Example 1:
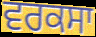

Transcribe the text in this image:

ਵਰਕਸਾ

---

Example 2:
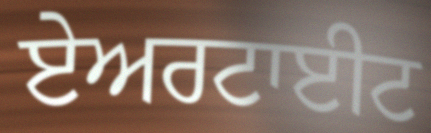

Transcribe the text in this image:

ਏਅਰਟਾਈਟ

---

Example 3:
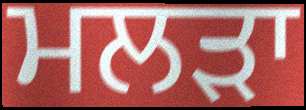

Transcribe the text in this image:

ਮਲੜਾ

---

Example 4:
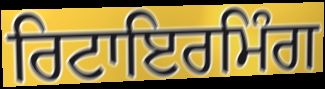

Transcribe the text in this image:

ਰਿਟਾਇਰਮਿੰਗ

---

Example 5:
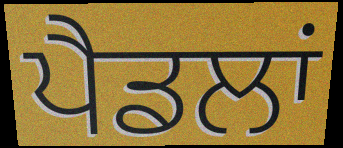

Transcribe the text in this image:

ਪੈਡਲਾਂ